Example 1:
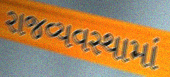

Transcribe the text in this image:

રાજવ્યવસ્થામાં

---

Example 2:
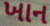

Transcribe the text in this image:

ખાન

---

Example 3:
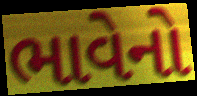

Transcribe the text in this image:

ભાવેનો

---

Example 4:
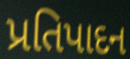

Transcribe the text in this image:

પ્રતિપાદન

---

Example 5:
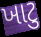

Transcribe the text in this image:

ખાટુ